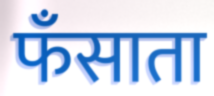
फँसाता